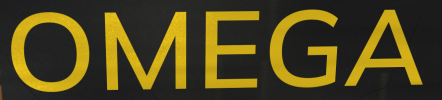
OMEGA